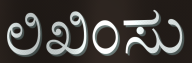
ಲಿಖಿಂಸು